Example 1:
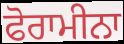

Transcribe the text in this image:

ਫੋਰਾਮੀਨਾ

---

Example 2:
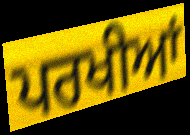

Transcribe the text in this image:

ਪਰਖੀਆਂ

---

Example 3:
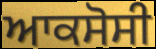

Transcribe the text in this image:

ਆਕਸੋਸੀ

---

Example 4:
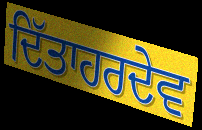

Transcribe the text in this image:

ਦਿੱਤਾਹਰਦੇਵ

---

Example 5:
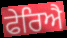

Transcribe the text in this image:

ਫੇਰਿਐ